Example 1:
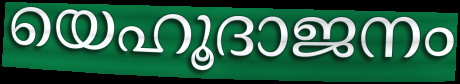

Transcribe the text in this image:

യെഹൂദാജനം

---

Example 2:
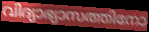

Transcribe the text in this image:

വിദ്യാഭ്യാസത്തിനോ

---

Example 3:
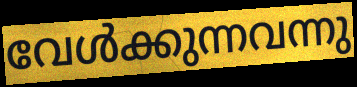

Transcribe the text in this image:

വേൾക്കുന്നവന്നു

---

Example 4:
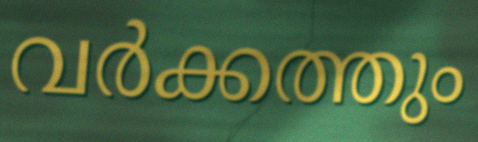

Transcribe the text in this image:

വർക്കത്തും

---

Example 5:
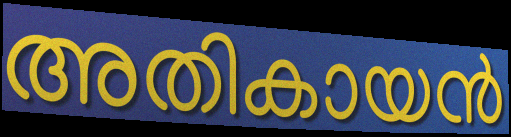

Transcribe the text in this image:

അതികായൻ